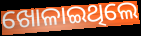
ଖୋଳାଇଥିଲେ